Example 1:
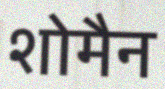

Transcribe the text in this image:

शोमैन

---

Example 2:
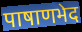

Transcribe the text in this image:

पाषाणभेद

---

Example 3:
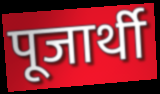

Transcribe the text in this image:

पूजार्थी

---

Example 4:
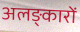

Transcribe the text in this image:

अलङ्कारों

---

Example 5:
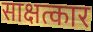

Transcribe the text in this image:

साक्षत्कार